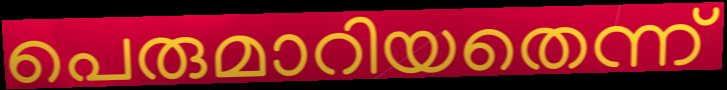
പെരുമാറിയതെന്ന്